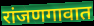
रांजणगावात